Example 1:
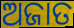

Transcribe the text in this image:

ଅଜାତ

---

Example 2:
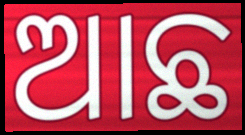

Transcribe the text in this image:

ଆଛ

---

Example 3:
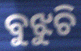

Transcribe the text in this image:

ବୁଝୁଚି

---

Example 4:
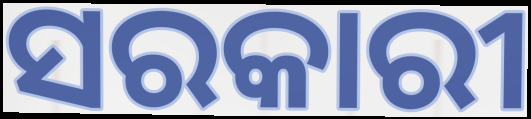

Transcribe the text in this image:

ସରକାରୀ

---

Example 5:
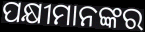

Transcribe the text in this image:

ପକ୍ଷୀମାନଙ୍କର